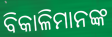
ବିକାଳିମାନଙ୍କ